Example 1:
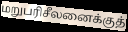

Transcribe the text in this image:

மறுபரிசீலனைக்குத்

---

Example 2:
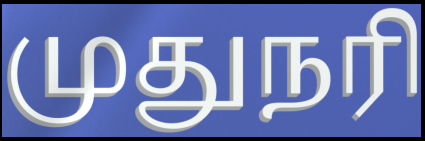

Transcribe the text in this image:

முதுநரி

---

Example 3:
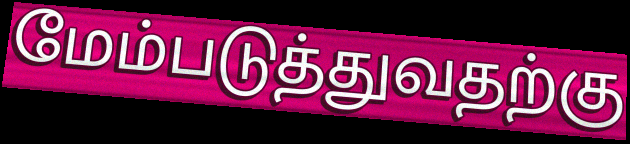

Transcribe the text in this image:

மேம்படுத்துவதற்கு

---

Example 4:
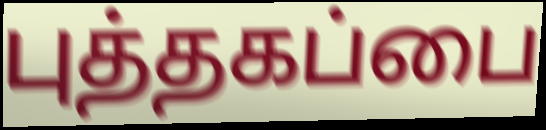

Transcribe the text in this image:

புத்தகப்பை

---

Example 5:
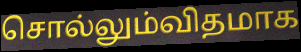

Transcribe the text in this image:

சொல்லும்விதமாக